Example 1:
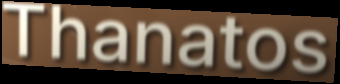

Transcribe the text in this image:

Thanatos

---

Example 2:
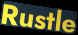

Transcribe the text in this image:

Rustle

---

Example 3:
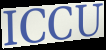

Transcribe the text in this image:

ICCU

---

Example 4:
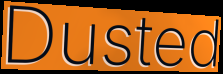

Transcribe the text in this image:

Dusted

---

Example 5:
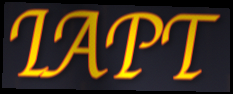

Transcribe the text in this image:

IAPT